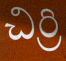
చిర్రి